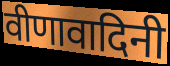
वीणावादिनी